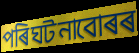
পৰিঘটনাবোৰৰ